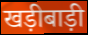
खड़ीबाड़ी